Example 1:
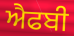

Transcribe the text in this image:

ਐਫਬੀ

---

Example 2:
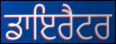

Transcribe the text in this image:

ਡਾਇਰੈਟਰ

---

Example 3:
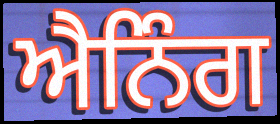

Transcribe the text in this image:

ਐਨਿੰਗ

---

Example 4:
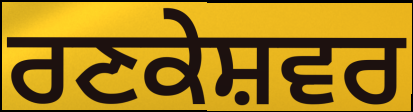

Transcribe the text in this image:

ਰਣਕੇਸ਼ਵਰ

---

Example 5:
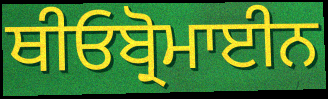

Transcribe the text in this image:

ਥੀਓਬ੍ਰੋਮਾਈਨ